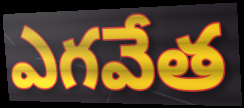
ఎగవేత